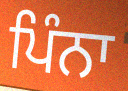
ਪਿੰਨਾ